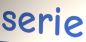
serie